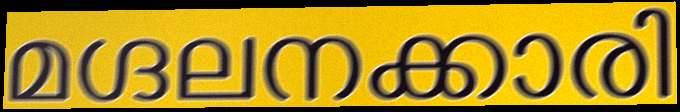
മഗ്ദലനക്കാരി